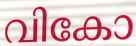
വികോ